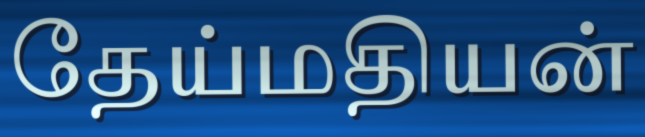
தேய்மதியன்